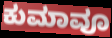
ಕುಮಾವೂ